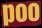
poo